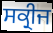
ਸਕ੍ਰੀਜ